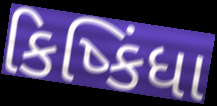
કિષ્કિંધા